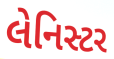
લેનિસ્ટર